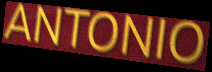
ANTONIO